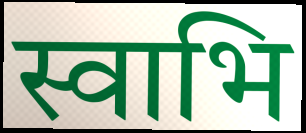
स्वाभि